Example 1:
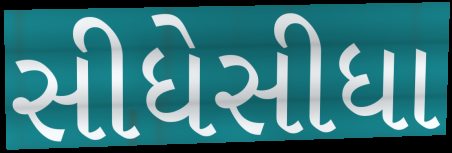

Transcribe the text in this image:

સીધેસીધા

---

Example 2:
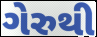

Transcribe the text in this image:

ગેરુથી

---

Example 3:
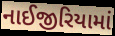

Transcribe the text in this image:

નાઈજીરિયામાં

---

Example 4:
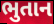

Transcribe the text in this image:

ભુતાન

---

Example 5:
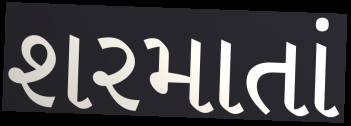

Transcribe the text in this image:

શરમાતાં